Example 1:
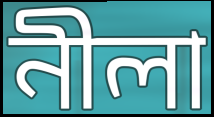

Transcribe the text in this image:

নীলা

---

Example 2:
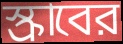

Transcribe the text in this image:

স্ক্রাবের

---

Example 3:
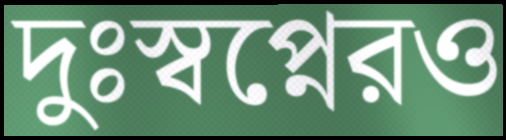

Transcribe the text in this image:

দুঃস্বপ্নেরও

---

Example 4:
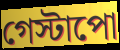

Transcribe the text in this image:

গেস্টাপো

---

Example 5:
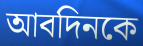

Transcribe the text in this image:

আবদিনকে